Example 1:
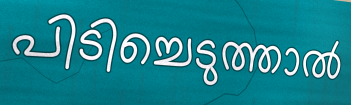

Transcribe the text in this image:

പിടിച്ചെടുത്താൽ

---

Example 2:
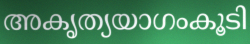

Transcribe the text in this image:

അകൃത്യയാഗംകൂടി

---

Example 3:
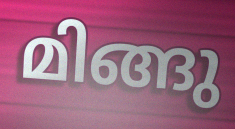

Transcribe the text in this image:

മിങ്ങു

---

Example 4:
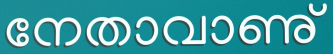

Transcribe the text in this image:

നേതാവാണു്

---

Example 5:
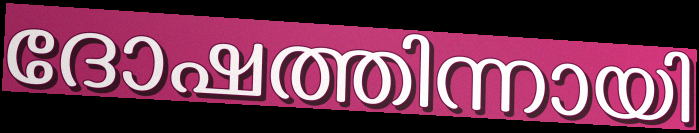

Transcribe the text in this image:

ദോഷത്തിന്നായി